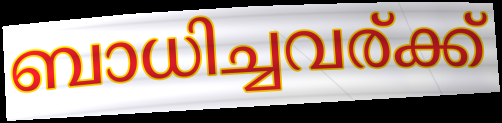
ബാധിച്ചവര്ക്ക്